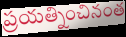
ప్రయత్నించినంత